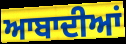
ਆਬਾਦੀਆਂ